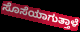
ಸೊಸೆಯಾಗುತ್ತಾಳೆ